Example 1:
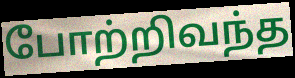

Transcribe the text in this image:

போற்றிவந்த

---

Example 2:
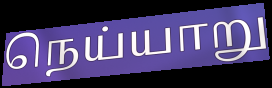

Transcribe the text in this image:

நெய்யாறு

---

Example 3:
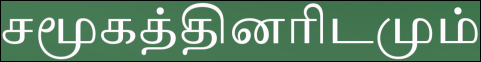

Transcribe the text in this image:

சமூகத்தினரிடமும்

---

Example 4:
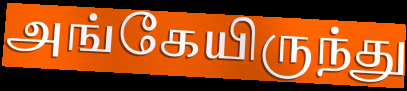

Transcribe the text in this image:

அங்கேயிருந்து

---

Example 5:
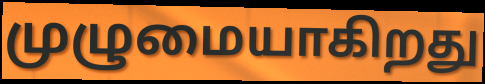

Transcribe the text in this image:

முழுமையாகிறது